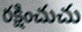
రక్షించుచు